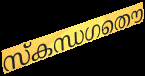
സ്കന്ധഗതൌ